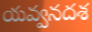
యవ్వనదశ